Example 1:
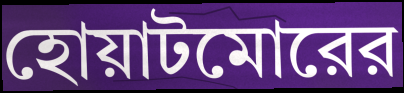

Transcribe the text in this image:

হোয়াটমোরের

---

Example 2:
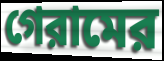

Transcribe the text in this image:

গেরামের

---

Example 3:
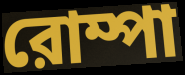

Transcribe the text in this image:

রোম্পা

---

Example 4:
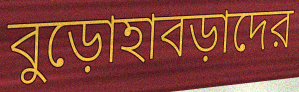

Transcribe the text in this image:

বুড়োহাবড়াদের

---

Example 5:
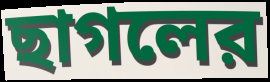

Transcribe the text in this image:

ছাগলের